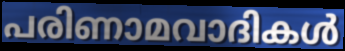
പരിണാമവാദികൾ